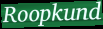
Roopkund